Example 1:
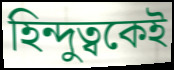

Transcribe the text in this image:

হিন্দুত্বকেই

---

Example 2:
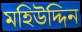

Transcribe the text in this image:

মহিউদ্দিন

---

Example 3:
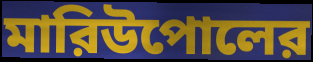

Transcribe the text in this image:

মারিউপোলের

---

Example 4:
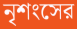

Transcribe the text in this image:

নৃশংসের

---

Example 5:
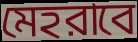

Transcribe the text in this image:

মেহরাবে